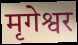
मृगेश्वर